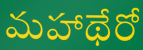
మహాథేరో